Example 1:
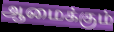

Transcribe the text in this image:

ஆமைக்கும்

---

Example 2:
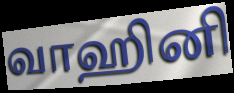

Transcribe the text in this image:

வாஹினி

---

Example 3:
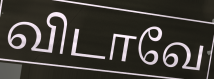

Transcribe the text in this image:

விடாவே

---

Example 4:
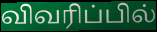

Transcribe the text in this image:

விவரிப்பில்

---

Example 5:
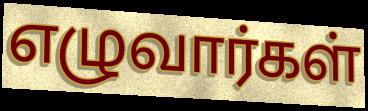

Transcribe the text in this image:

எழுவார்கள்